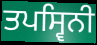
ਤਪਸ੍ਵਿਨੀ